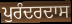
ਪੁਰੰਦਰਦਾਸ